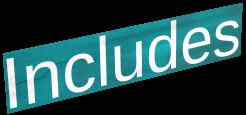
Includes